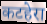
कटहेरा